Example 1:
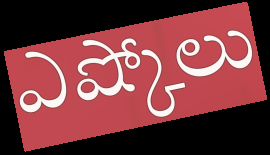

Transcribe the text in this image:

ఎష్కోలు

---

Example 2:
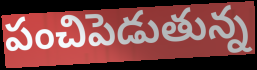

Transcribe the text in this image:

పంచిపెడుతున్న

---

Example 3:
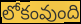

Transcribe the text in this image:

లోకంవుంది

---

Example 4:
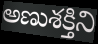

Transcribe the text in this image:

అణుశక్తిని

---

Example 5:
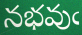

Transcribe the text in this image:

నభవుఁ